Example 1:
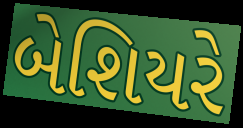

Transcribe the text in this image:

બેશિયરે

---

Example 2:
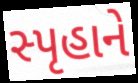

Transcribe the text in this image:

સ્પૃહાને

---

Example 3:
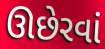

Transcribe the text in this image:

ઊછેરવાં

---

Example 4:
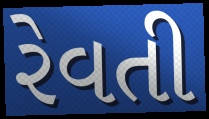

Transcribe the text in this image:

રેવતી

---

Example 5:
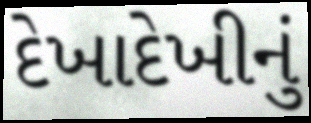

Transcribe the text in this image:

દેખાદેખીનું